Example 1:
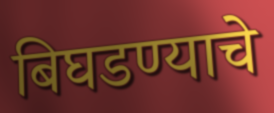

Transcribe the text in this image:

बिघडण्याचे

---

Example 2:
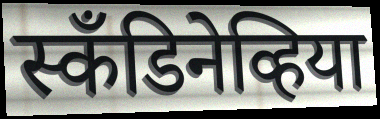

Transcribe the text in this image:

स्कँडिनेव्हिया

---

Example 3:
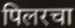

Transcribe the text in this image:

पिलरचा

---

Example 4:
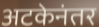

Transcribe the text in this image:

अटकेनंतर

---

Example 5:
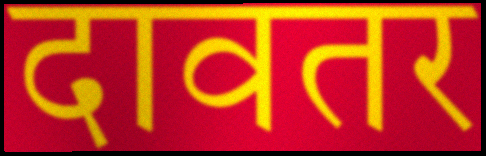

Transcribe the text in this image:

दावतर